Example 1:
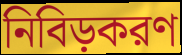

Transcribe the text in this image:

নিবিড়করণ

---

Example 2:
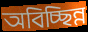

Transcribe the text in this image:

অবিচ্ছিন্ন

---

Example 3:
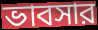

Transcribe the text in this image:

ভাবসার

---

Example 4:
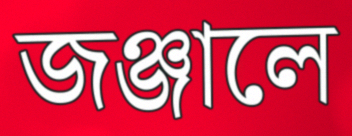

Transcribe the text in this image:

জঞ্জালে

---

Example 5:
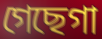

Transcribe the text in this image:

গেছেগা